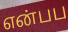
என்பப